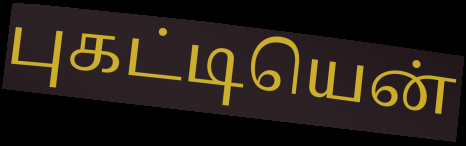
புகட்டியென்